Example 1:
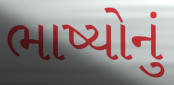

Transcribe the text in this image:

ભાષ્યોનું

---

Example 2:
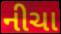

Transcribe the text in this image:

નીચા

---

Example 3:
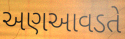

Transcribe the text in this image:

અણઆવડતે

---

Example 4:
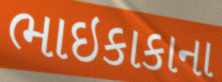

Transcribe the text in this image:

ભાઇકાકાના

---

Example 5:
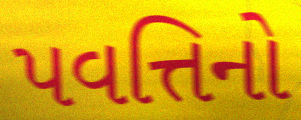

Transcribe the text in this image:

પવત્તિનો